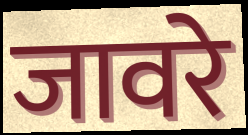
जावरे